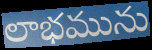
లాభమును